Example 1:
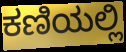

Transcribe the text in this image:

ಕಣಿಯಲ್ಲಿ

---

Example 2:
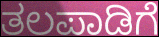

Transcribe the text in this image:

ತಲಪಾಡಿಗೆ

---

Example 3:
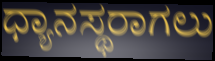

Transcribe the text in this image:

ಧ್ಯಾನಸ್ಥರಾಗಲು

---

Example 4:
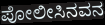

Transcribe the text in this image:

ಪೋಲೀಸಿನವನ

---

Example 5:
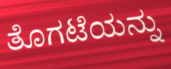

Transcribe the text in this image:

ತೊಗಟೆಯನ್ನು